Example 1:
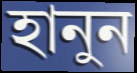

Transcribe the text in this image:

হানুন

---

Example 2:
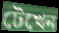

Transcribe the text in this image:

টেখেন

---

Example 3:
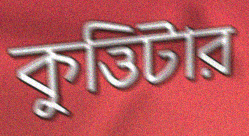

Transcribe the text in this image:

কুত্তিটার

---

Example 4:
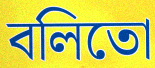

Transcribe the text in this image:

বলিতো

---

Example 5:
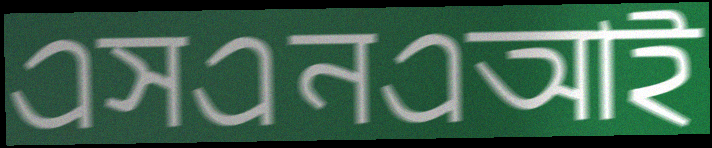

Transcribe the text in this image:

এসএনএআই